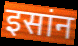
इसांन